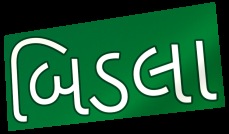
બિડલા